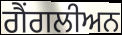
ਗੈਂਗਲੀਅਨ